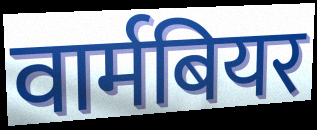
वार्मबियर